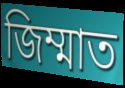
জিম্মাত